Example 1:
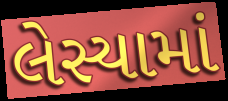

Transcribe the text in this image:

લેસ્યામાં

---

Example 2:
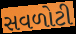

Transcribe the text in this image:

સવળોટી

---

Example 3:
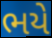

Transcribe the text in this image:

ભયે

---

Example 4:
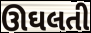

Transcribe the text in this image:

ઊઘલતી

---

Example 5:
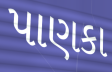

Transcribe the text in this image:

પાણકા